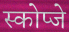
स्कोप्जे